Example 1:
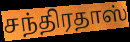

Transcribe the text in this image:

சந்திரதாஸ்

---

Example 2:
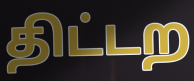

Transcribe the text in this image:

திட்டற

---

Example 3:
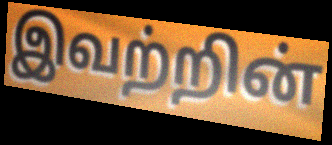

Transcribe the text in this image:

இவற்றின்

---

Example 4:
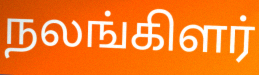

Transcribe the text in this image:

நலங்கிளர்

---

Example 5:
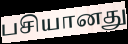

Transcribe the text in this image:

பசியானது